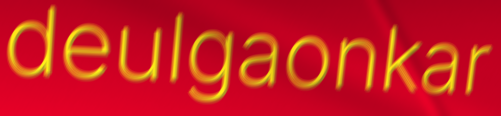
deulgaonkar